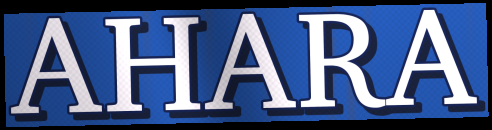
AHARA